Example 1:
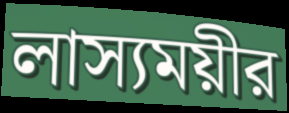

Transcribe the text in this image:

লাস্যময়ীর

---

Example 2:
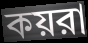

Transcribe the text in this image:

কয়রা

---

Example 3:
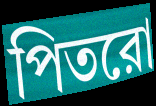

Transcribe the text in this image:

পিতরো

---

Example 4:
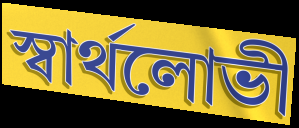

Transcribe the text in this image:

স্বার্থলোভী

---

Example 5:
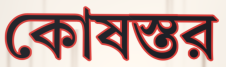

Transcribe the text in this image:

কোষস্তর